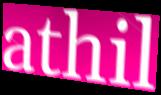
athil